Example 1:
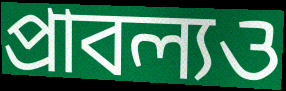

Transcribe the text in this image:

প্রাবল্যও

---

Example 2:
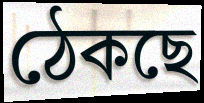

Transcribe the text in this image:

ঠেকছে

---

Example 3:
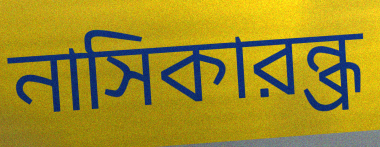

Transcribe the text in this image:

নাসিকারন্ধ্র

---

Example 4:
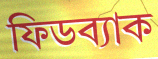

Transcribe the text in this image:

ফিডব্যাক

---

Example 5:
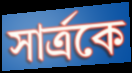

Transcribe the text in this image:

সার্ত্রকে